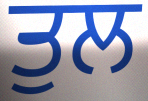
ਤੁਲ